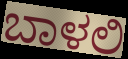
ಬಾಳಲಿ